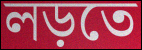
লড়তে